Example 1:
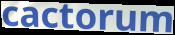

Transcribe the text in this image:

cactorum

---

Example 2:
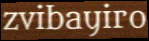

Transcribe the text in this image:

zvibayiro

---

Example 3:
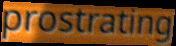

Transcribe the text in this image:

prostrating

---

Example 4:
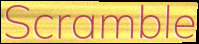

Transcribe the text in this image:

Scramble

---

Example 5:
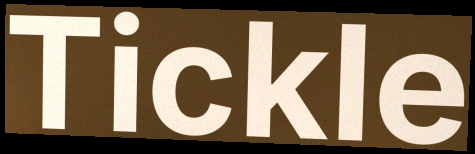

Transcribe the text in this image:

Tickle